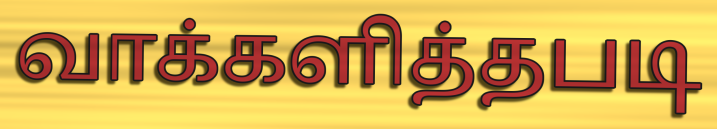
வாக்களித்தபடி